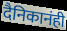
दैनिकानंही